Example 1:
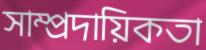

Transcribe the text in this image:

সাম্প্রদায়িকতা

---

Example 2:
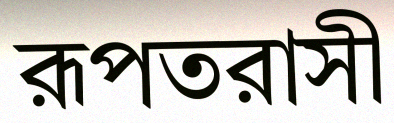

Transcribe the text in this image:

রূপতরাসী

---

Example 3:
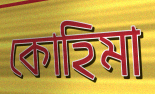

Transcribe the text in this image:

কোহিমা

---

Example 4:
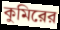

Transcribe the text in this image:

কুমিরের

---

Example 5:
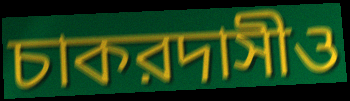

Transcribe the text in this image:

চাকরদাসীও